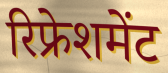
रिफ्रेशमेंट